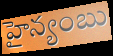
హైన్యంబు